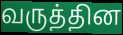
வருத்தின